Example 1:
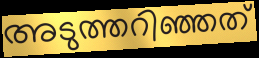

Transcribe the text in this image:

അടുത്തറിഞ്ഞത്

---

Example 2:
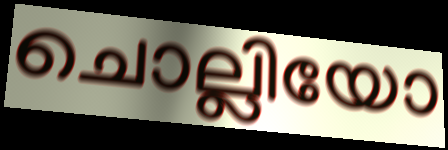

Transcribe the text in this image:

ചൊല്ലിയോ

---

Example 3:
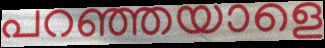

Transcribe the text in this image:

പറഞ്ഞയാളെ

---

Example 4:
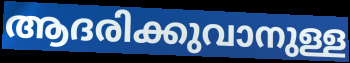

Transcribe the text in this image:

ആദരിക്കുവാനുള്ള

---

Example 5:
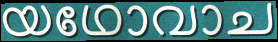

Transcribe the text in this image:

യഥോവാച